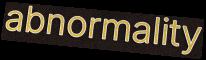
abnormality